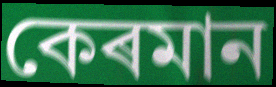
কেৰমান